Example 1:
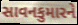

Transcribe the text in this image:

સાવનકુમારને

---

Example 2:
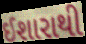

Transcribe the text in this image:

ઈશારાથી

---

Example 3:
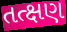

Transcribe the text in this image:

તત્ક્ષણ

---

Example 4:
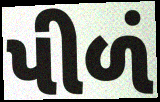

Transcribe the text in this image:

પીળં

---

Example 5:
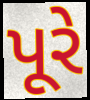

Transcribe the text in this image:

પૂરે